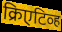
क्रिएटिव्ह